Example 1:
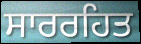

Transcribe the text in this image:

ਸਾਰਰਹਿਤ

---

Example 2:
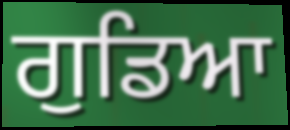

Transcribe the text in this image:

ਗੁਡਿਆ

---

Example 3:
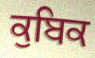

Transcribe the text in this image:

ਕੁਬਿਕ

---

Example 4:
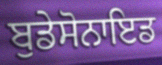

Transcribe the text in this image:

ਬੁਡੇਸੋਨਾਇਡ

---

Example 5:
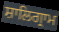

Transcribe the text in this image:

ਸ਼ਾਲਿਗ੍ਰਾਮ